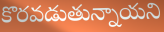
కొరవడుతున్నాయని